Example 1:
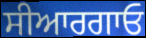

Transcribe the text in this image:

ਸੀਆਰਗਾਓ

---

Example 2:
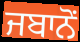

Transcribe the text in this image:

ਜਬਾਨੋਂ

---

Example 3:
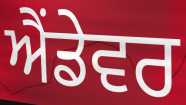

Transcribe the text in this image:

ਐਂਡੇਵਰ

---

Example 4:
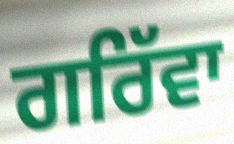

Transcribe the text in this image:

ਗਰਿੱਵਾ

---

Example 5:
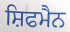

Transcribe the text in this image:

ਸ਼ਿਫਮੈਨ